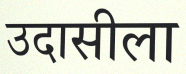
उदासीला